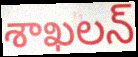
శాఖలన్